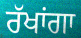
ਰੱਖਾਂਗਾ